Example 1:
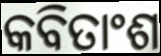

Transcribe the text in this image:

କବିତାଂଶ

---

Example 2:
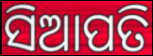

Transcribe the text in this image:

ସିଆପତି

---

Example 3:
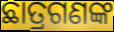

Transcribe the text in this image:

ଛାତ୍ରଗଣଙ୍କ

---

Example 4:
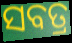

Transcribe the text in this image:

ସବତ୍ର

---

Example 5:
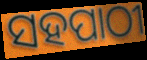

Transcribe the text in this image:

ସହପାଠୀ